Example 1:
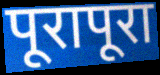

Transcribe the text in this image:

पूरापूरा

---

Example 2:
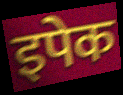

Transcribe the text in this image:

इपेक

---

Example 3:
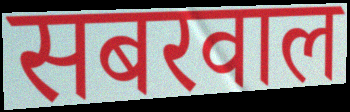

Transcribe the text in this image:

सबरवाल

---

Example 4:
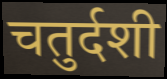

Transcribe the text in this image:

चतुर्दशी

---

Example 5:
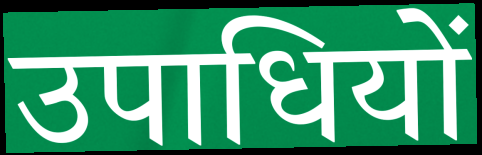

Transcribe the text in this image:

उपाधियों